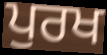
ਪੁਰਖ